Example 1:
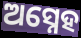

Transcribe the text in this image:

ଅସ୍ନେହ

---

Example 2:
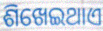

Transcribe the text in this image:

ଶିଖେଇଥାଏ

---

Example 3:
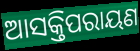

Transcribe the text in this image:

ଆସକ୍ତିପରାୟଣ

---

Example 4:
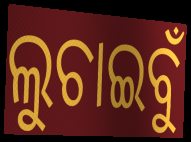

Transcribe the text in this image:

ଲୁଚାଇବୁଁ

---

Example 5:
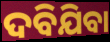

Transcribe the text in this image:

ଦବିଯିବା